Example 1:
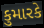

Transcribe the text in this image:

કુમારકે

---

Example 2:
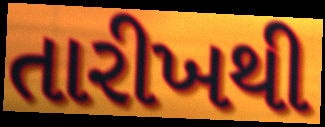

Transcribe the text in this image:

તારીખથી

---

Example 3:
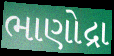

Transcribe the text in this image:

ભાણોદ્રા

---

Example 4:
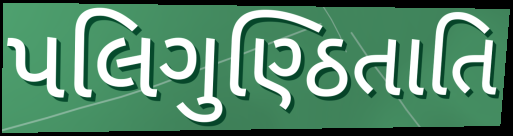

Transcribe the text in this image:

પલિગુણ્ઠિતાતિ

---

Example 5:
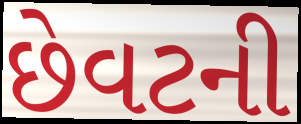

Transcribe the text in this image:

છેવટની